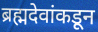
ब्रह्मदेवांकडून